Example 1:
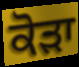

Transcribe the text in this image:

ਕੋੜਾ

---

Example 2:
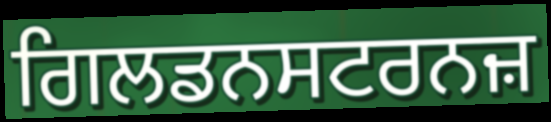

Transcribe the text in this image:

ਗਿਲਡਨਸਟਰਨਜ਼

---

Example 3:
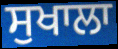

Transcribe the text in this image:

ਸੁਖਾਲਾ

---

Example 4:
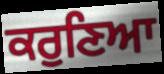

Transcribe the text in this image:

ਕਰੁਣਿਆ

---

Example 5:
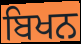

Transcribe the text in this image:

ਬਿਖਨ